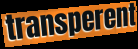
transperent